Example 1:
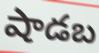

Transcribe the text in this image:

షాడబ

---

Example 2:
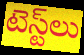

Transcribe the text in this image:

టెస్ట్‌లు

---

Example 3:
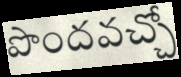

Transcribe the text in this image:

పొందవచ్చో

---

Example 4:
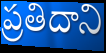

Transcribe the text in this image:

ప్రతిదాని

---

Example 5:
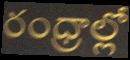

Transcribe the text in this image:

రంధ్రాల్లో